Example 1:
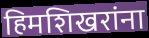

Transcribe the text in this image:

हिमशिखरांना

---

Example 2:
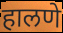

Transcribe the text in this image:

हालणे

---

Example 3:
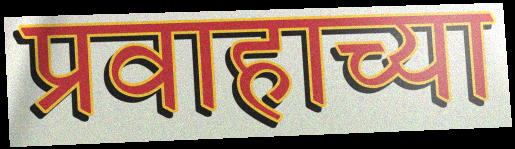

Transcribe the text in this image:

प्रवाहाच्या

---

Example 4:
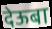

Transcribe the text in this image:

देऊबा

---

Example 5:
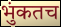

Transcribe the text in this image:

भुंकतच